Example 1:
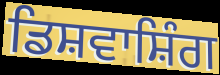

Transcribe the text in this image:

ਡਿਸ਼ਵਾਸ਼ਿੰਗ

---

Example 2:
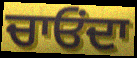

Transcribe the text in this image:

ਚਾਓਂਦਾ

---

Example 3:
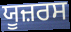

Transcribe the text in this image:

ਯੂਜ਼ਰਸ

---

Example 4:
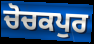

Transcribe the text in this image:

ਚੋਚਕਪੁਰ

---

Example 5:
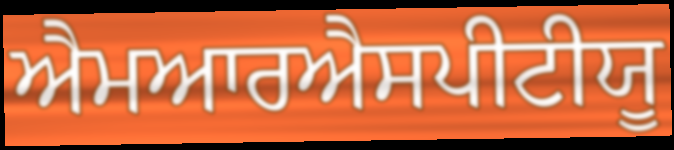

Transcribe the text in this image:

ਐਮਆਰਐਸਪੀਟੀਯੂ